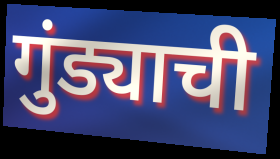
गुंड्याची